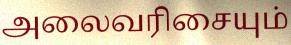
அலைவரிசையும்